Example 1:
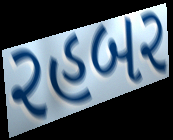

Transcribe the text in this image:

રહબર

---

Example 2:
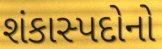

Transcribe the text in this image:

શંકાસ્પદોનો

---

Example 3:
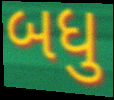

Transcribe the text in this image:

બધુ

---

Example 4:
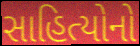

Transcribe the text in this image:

સાહિત્યોનો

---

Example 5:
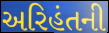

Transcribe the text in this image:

અરિહંતની